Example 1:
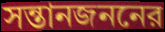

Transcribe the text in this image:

সন্তানজননের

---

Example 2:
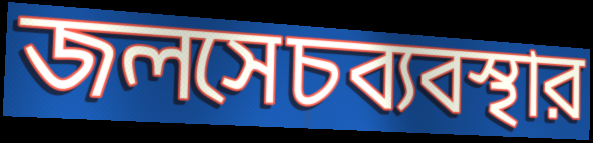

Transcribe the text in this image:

জলসেচব্যবস্থার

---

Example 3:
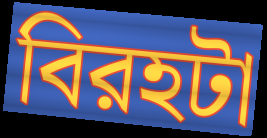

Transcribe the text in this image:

বিরহটা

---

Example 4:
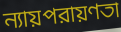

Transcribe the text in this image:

ন্যায়পরায়ণতা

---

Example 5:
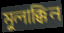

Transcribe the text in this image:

মুলাক্কিন